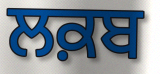
ਲਕ਼ਬ